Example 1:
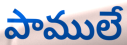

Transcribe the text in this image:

పాములే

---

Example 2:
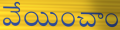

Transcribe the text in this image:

వేయించాం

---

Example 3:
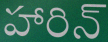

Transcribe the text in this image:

హారిన్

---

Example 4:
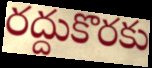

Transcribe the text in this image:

రద్దుకొరకు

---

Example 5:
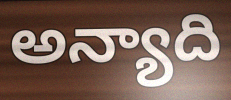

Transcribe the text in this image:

అన్యాది